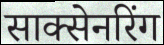
साक्सेनरिंग